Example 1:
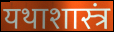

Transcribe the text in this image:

यथाशास्त्रं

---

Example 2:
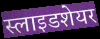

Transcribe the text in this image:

स्लाइडशेयर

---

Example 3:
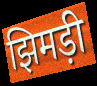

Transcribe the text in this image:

झिमड़ी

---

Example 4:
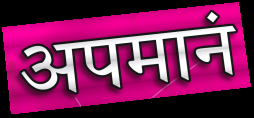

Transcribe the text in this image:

अपमानं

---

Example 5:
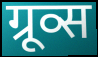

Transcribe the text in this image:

ग्रूव्स